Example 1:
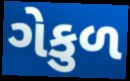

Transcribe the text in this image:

ગેકુળ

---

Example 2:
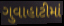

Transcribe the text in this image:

ગુવાહાટીમાં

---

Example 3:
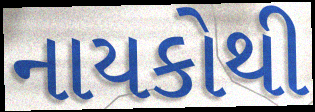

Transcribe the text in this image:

નાયકોથી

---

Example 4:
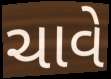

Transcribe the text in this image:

ચાવે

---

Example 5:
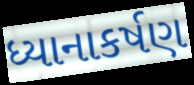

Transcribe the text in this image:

ધ્યાનાકર્ષણ